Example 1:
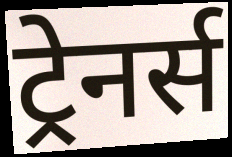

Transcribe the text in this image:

ट्रेनर्स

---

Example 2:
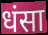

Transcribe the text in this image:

धंसा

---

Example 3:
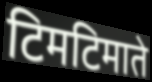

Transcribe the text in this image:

टिमटिमाते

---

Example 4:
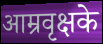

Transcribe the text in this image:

आम्रवृक्षके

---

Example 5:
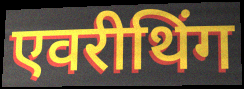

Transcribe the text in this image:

एवरीथिंग